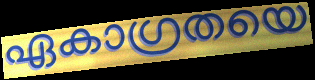
ഏകാഗ്രതയെ